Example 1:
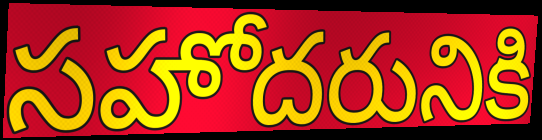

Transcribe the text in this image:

సహోదరునికి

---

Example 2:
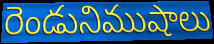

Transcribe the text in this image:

రెండునిముషాలు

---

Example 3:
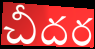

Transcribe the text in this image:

చీదర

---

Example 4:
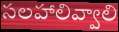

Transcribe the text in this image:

సలహాలివ్వాలి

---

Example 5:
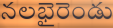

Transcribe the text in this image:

నలభైరెండు